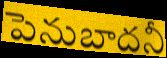
పెనుబాదనీ